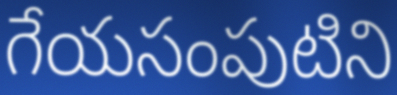
గేయసంపుటిని